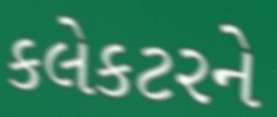
કલેકટરને